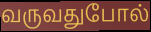
வருவதுபோல்